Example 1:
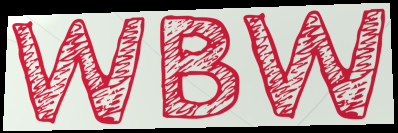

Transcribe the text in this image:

WBW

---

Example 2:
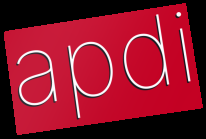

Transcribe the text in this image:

apdi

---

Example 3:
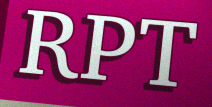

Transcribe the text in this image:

RPT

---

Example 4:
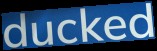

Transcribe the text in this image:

ducked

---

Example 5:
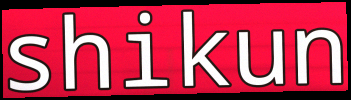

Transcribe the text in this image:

shikun